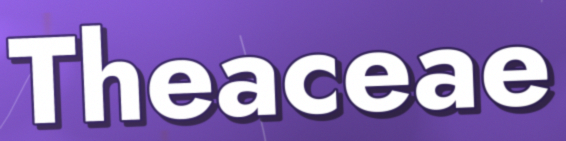
Theaceae